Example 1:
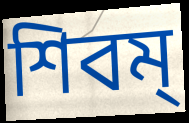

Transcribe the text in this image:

শিবম্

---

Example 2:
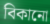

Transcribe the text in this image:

বিকানো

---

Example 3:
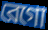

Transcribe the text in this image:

রেগো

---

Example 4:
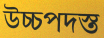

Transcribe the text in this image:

উচ্চপদস্ত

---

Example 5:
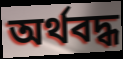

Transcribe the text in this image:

অর্থবদ্ধ